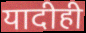
यादीही